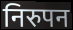
निरुपन